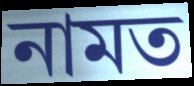
নামত